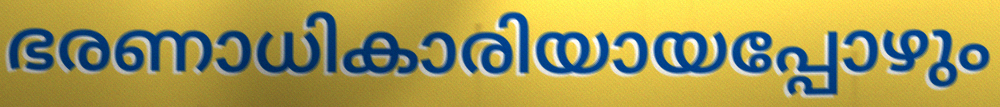
ഭരണാധികാരിയായപ്പോഴും